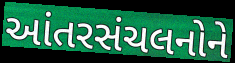
આંતરસંચલનોને